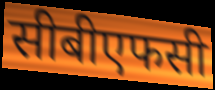
सीबीएफसी